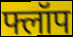
फ्लॉप